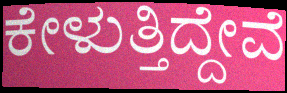
ಕೇಳುತ್ತಿದ್ದೇವೆ